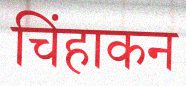
चिंहाकन